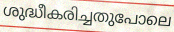
ശുദ്ധീകരിച്ചതുപോലെ